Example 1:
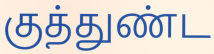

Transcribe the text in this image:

குத்துண்ட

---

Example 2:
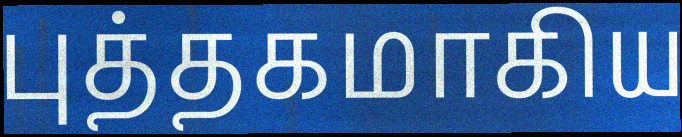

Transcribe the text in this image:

புத்தகமாகிய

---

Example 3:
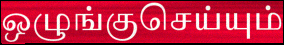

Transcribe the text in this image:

ஒழுங்குசெய்யும்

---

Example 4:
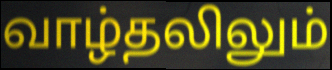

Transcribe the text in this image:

வாழ்தலிலும்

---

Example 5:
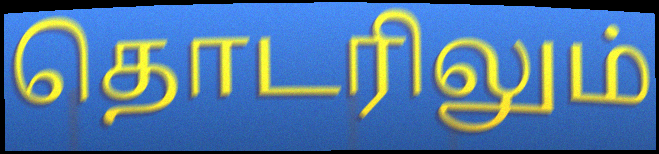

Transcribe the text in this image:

தொடரிலும்